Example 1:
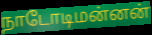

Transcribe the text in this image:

நாடோடிமன்னன்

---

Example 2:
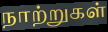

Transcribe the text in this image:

நாற்றுகள்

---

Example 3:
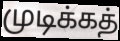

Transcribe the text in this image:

முடிக்கத்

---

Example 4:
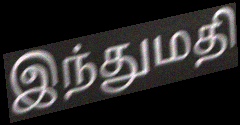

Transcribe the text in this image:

இந்துமதி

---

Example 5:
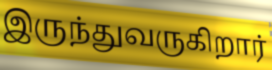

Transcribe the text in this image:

இருந்துவருகிறார்